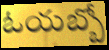
ఓయబ్బో